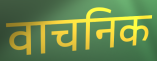
वाचनिक